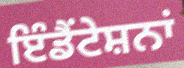
ਇੰਡੈਂਟੇਸ਼ਨਾਂ